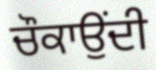
ਚੌਕਾਉਂਦੀ